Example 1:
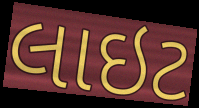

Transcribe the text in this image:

લાઇટ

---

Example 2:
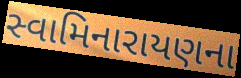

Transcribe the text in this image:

સ્વામિનારાયણના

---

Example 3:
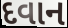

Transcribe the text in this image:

દવાન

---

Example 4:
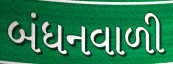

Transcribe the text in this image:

બંધનવાળી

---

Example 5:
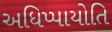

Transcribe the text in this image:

અધિપ્પાયોતિ